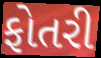
ફોતરી